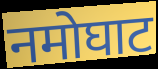
नमोघाट